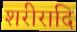
शरीरादि